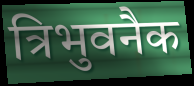
त्रिभुवनैक